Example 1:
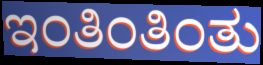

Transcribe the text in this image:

ಇಂತಿಂತಿಂತು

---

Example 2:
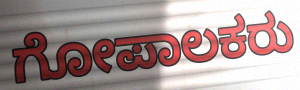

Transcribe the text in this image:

ಗೋಪಾಲಕರು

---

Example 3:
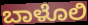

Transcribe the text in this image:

ಬಾಳೊಲಿ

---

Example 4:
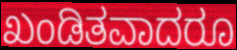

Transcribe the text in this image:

ಖಂಡಿತವಾದರೂ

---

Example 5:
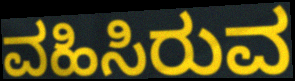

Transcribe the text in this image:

ವಹಿಸಿರುವ